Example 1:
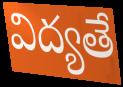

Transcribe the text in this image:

విద్యతే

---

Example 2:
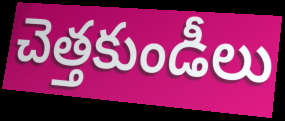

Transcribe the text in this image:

చెత్తకుండీలు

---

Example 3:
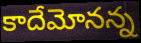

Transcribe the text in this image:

కాదేమోనన్న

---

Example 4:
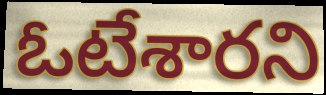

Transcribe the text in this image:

ఓటేశారని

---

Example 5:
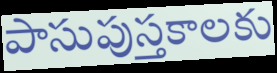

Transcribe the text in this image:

పాసుపుస్తకాలకు